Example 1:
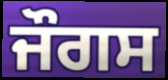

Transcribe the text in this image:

ਜੌਗਸ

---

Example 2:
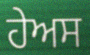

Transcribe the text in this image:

ਹੇਅਸ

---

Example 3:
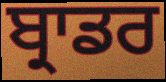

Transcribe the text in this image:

ਬ੍ਰਾਡਰ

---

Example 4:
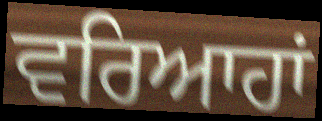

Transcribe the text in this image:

ਵਰਿਆਹਾਂ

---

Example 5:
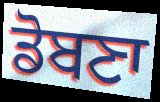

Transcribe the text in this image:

ਡੋਬਣਾ